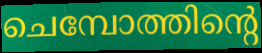
ചെമ്പോത്തിന്റെ